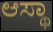
ಆಸ್ಥಾ